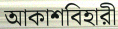
আকাশবিহারী